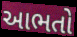
આભતો